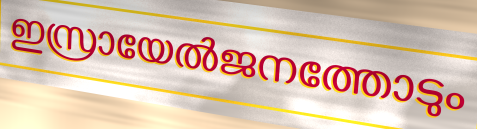
ഇസ്രായേൽജനത്തോടും